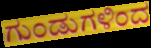
ಗುಂಡುಗಳಿಂದ